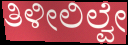
ತಿಳೀಲಿಲ್ವೇ